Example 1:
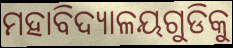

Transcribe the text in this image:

ମହାବିଦ୍ୟାଳୟଗୁଡିକୁ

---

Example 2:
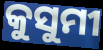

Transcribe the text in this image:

କୁସୁମୀ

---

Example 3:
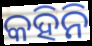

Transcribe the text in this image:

କହିନି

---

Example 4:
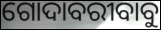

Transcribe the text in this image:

ଗୋଦାବରୀବାବୁ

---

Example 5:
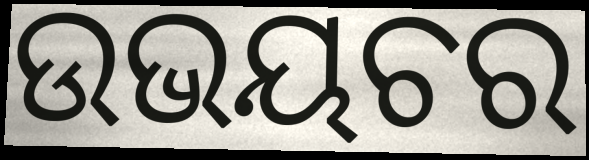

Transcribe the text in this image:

ଉଭୟଚର